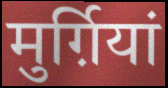
मुर्ग़ियां